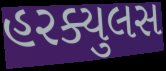
હરક્યુલસ